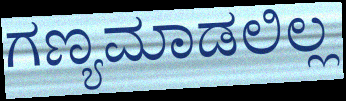
ಗಣ್ಯಮಾಡಲಿಲ್ಲ